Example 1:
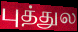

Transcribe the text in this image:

புத்துல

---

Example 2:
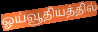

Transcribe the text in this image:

ஓய்வூதியத்தில்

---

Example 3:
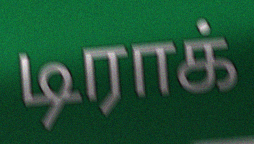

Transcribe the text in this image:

டிராக்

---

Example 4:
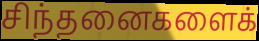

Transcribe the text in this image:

சிந்தனைகளைக்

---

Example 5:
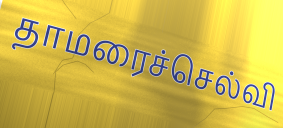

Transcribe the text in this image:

தாமரைச்செல்வி